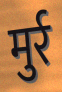
मुर्र